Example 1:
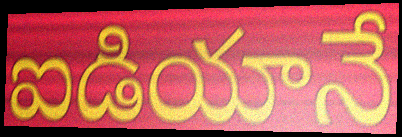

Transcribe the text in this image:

ఐడియానే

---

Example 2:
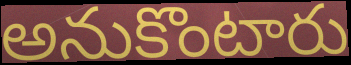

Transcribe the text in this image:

అనుకొంటారు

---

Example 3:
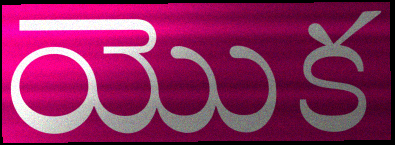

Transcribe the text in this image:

యొక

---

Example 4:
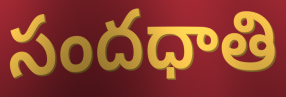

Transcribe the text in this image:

సందధాతి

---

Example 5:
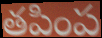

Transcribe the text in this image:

తపింప